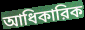
আধিকারিক